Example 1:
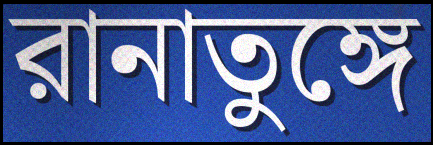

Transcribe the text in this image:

রানাতুঙ্গে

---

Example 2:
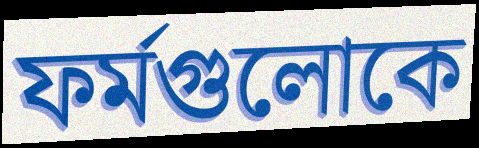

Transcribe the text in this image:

ফর্মগুলোকে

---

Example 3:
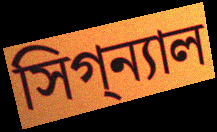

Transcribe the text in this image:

সিগ্‌ন্যাল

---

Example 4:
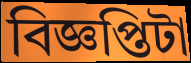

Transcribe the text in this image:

বিজ্ঞপ্তিটা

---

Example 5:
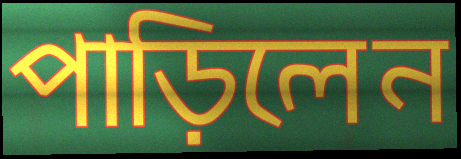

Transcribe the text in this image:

পাড়িলেন